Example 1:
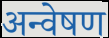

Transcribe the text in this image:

अन्वेषण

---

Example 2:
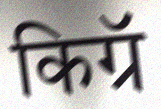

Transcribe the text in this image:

किग्रॅ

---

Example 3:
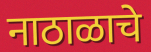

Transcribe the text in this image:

नाठाळाचे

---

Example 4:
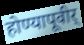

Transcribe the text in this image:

होण्यापूवीर्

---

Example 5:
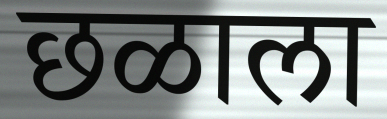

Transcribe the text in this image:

छळाला